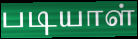
படியாள்